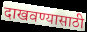
दाखवण्यासाठी